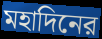
মহাদিনের